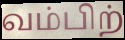
வம்பிற்